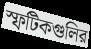
স্ফটিকগুলির